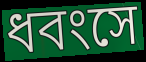
ধবংসে